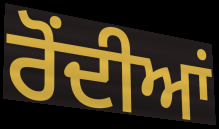
ਰੋਂਦੀਆਂ